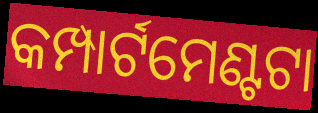
କମ୍ପାର୍ଟମେଣ୍ଟଟା